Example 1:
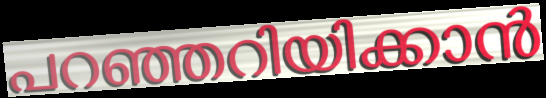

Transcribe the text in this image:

പറഞ്ഞറിയിക്കാൻ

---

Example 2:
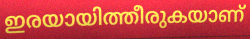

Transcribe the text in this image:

ഇരയായിത്തീരുകയാണ്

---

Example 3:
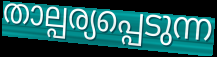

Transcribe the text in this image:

താല്പര്യപ്പെടുന്ന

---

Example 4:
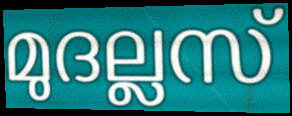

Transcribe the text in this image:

മുദല്ലസ്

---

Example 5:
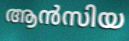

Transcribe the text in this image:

ആൻസിയ